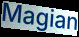
Magian